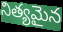
నిత్యమైన